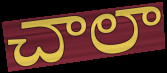
చాలా